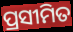
ପ୍ରସୀମିତ